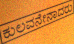
ಕುಲವನೇನಾದರು